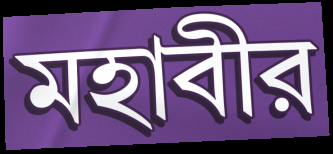
মহাবীর